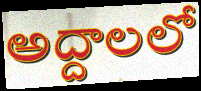
అద్దాలలో